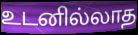
உடனில்லாத